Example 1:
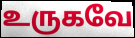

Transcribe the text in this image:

உருகவே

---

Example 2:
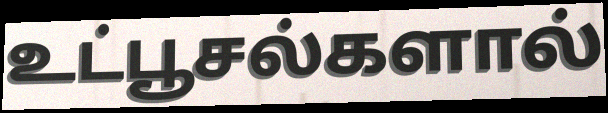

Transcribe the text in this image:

உட்பூசல்களால்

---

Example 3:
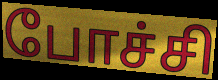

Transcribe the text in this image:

போச்சி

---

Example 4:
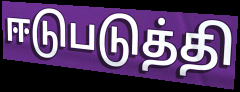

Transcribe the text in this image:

ஈடுபடுத்தி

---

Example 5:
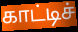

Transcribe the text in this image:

காட்டிச்